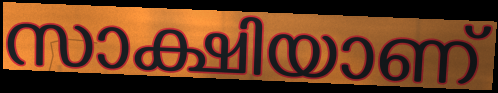
സാക്ഷിയാണ്